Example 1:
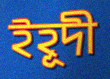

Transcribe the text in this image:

ইহূদী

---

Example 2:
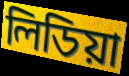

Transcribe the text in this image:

লিডিয়া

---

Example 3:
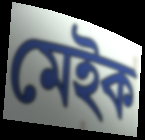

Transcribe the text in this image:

মেইক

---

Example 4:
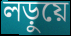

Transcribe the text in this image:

লড়ুয়ে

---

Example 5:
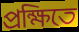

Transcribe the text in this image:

প্রক্ষিতে